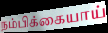
நம்பிக்கையாய்